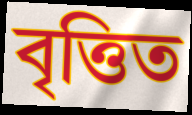
বৃত্তিত